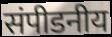
संपीडनीय